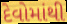
દેવોમાંથી